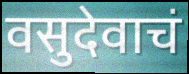
वसुदेवाचं